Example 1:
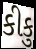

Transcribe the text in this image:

કીકુ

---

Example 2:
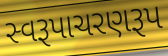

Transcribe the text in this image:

સ્વરૂપાચરણરૂપ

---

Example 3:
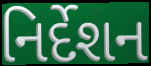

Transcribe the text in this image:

નિર્દેશન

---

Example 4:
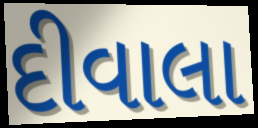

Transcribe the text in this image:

દીવાલા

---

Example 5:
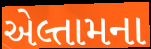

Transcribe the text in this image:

એલ્તામના